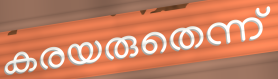
കരയരുതെന്ന്